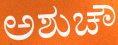
ಅಶುಚೌ